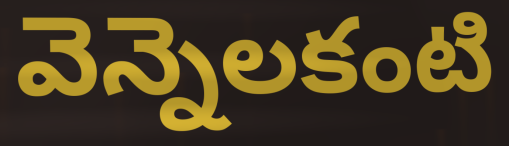
వెన్నెలకంటి